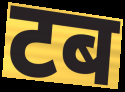
टब